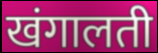
खंगालती